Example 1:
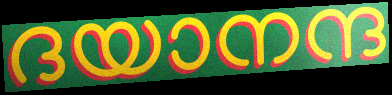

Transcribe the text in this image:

ദയാനന്ദ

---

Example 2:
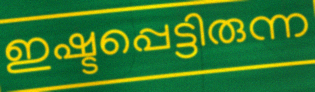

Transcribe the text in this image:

ഇഷ്ടപ്പെട്ടിരുന്ന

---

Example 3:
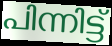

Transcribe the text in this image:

പിന്നിട്ട്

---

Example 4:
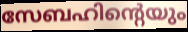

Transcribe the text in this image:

സേബഹിന്റെയും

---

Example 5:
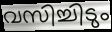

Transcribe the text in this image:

വസിച്ചിടും